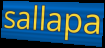
sallapa